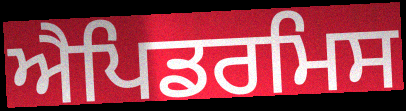
ਐਪਿਡਰਮਿਸ